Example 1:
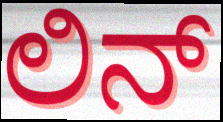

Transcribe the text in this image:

ಲಿನ್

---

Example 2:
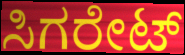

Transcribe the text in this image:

ಸಿಗರೇಟ್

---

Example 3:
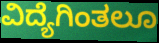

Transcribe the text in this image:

ವಿದ್ಯೆಗಿಂತಲೂ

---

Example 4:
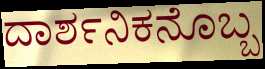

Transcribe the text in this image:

ದಾರ್ಶನಿಕನೊಬ್ಬ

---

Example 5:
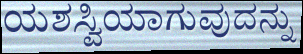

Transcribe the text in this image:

ಯಶಸ್ವಿಯಾಗುವುದನ್ನು